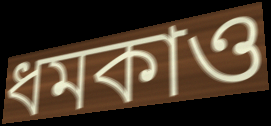
ধমকাও